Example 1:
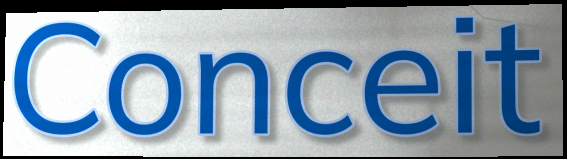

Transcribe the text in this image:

Conceit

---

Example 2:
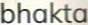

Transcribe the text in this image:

bhakta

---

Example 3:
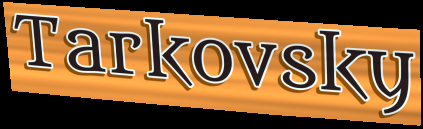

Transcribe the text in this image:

Tarkovsky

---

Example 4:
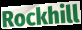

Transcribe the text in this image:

Rockhill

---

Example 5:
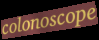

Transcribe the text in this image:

colonoscope